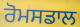
ਰੋਮਸਡਾਲ